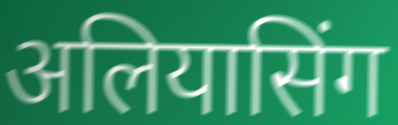
अलियासिंग